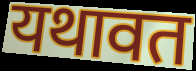
यथावत